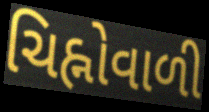
ચિહ્નોવાળી